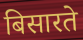
बिसारते